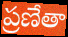
ప్రణేతా